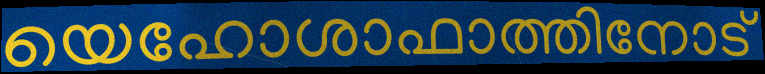
യെഹോശാഫാത്തിനോട്